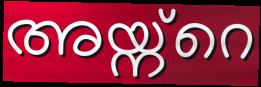
അയ്ന്റെ